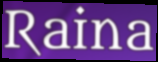
Raina